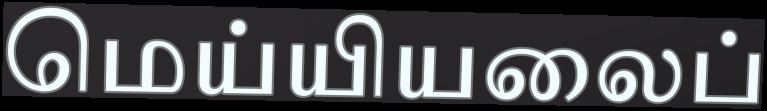
மெய்யியலைப்